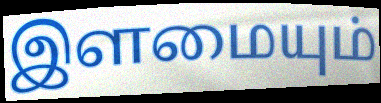
இளமையும்